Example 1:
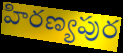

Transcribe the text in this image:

హిరణ్యపుర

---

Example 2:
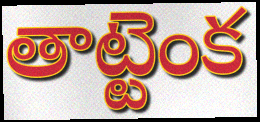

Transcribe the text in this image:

తాట్టెంక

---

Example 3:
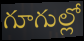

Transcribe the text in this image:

గూగుల్లో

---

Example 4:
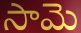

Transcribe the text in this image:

సామె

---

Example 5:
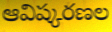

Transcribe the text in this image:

ఆవిష్కరణల